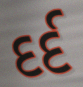
દર્દ